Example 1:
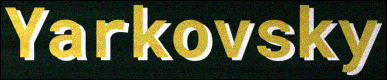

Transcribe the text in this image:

Yarkovsky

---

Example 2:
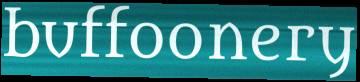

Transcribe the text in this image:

buffoonery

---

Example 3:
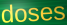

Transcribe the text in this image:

doses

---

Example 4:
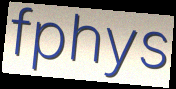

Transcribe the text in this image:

fphys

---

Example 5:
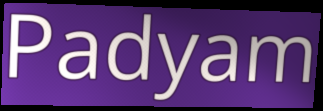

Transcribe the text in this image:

Padyam